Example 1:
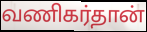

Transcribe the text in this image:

வணிகர்தான்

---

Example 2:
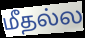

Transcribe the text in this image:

மீதல்ல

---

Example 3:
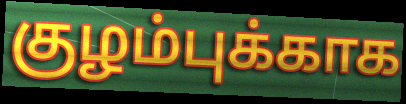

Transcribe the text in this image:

குழம்புக்காக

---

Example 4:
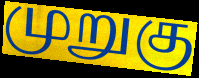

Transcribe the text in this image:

முறுகு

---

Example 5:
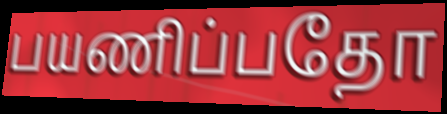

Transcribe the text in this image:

பயணிப்பதோ